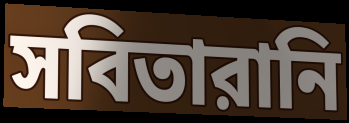
সবিতারানি